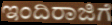
ಇಂದಿರಾಜಿಗೆ